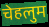
चेहलुम